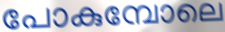
പോകുമ്പോലെ